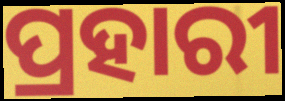
ପ୍ରହାରୀ